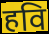
हवि